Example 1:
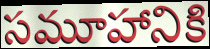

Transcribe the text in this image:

సమూహానికి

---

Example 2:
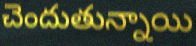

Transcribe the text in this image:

చెందుతున్నాయి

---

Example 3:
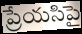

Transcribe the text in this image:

ప్రేయసిపై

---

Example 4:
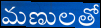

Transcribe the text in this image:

మణులతో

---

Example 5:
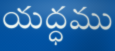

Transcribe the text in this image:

యద్ధము